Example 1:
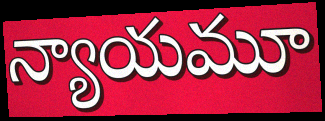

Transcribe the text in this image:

న్యాయమూ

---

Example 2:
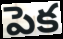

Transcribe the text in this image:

పెక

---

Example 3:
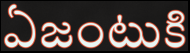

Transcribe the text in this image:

ఏజంటుకి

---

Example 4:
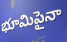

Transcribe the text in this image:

భూమిపైనా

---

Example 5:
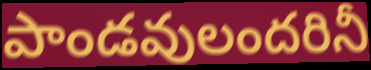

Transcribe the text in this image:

పాండవులందరినీ